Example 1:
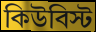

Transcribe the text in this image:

কিউবিস্ট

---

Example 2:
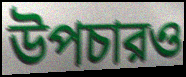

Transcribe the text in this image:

উপচারও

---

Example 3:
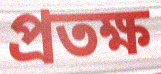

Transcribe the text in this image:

প্রতক্ষ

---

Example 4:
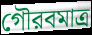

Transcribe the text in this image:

গৌরবমাত্র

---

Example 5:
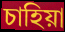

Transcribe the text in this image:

চাহিয়া